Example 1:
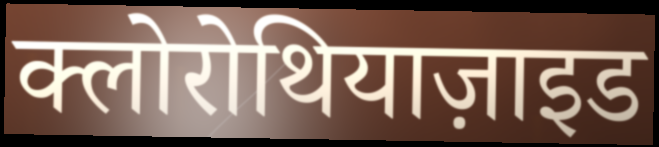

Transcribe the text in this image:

क्लोरोथियाज़ाइड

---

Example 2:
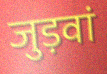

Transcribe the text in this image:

जुड़वां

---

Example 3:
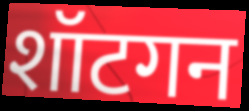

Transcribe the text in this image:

शॉटगन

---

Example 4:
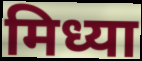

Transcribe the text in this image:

मिध्या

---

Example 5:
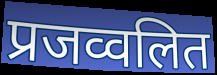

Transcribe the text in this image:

प्रजव्वलित